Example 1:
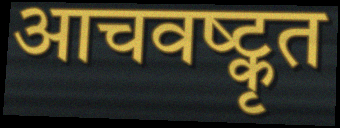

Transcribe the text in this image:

आचवष्ट्कृत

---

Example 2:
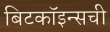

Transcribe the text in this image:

बिटकॉइन्सची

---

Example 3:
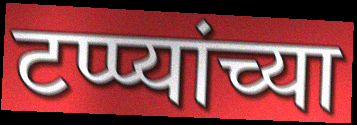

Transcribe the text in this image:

टप्प्यांच्या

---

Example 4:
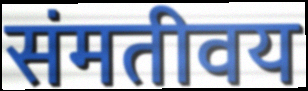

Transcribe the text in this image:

संमतीवय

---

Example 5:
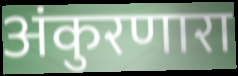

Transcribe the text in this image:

अंकुरणारा